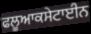
ਫਲੂਆਕਸੇਟਾਈਨ